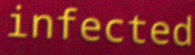
infected